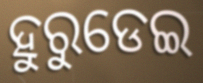
ହୁରୁଡେଇ